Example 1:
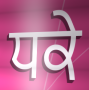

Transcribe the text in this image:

ਧਕੇ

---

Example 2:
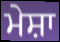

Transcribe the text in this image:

ਮੇਸ਼ਾ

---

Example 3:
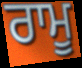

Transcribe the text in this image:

ਰਾਮੂ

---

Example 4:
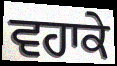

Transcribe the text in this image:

ਵਹਾਕੇ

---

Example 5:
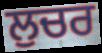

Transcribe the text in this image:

ਲੁਚਰ